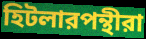
হিটলারপন্থীরা